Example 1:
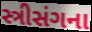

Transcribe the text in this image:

સ્ત્રીસંગના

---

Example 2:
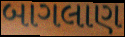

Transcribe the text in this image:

બાગલાણ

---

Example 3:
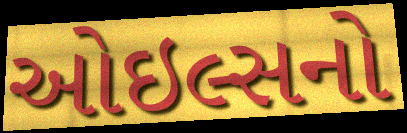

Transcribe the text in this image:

ઓઇલ્સનો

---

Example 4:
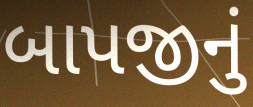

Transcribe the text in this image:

બાપજીનું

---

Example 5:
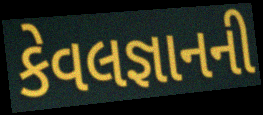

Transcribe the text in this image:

કેવલજ્ઞાનની